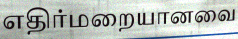
எதிர்மறையானவை